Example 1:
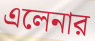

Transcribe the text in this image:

এলেনার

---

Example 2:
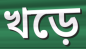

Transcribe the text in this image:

খড়ে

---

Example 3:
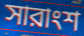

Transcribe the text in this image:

সারাংশ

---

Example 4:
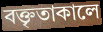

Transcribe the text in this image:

বক্তৃতাকালে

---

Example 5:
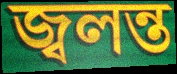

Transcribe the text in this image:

জ্বলন্ত